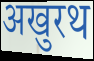
अखुरथ